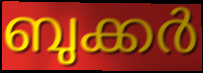
ബുക്കർ